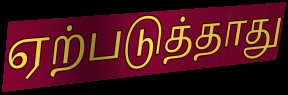
ஏற்படுத்தாது